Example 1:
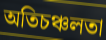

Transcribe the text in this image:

অতিচঞ্চলতা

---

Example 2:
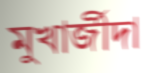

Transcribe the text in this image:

মুখার্জীদা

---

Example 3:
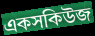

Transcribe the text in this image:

একসকিউজ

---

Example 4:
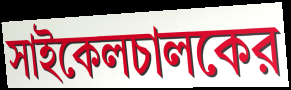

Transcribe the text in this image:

সাইকেলচালকের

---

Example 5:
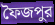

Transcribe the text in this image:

ফৈজপুর